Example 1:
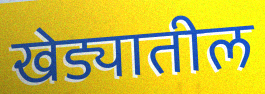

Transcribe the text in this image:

खेड्यातील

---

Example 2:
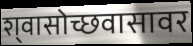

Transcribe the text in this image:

श्वासोच्छवासावर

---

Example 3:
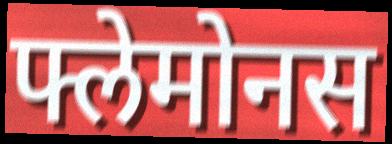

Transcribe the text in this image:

फ्लेमोनस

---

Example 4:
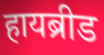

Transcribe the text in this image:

हायब्रीड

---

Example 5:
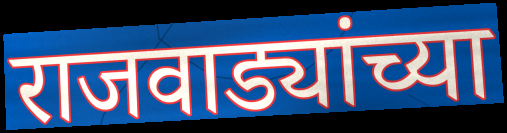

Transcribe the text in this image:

राजवाड्यांच्या